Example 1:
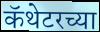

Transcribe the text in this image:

कॅथेटरच्या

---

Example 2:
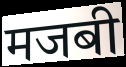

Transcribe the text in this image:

मजबी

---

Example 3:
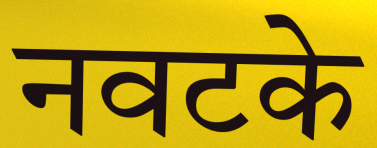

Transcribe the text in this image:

नवटके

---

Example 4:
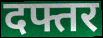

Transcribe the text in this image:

दफ्तर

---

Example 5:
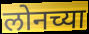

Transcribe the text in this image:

लोनच्या